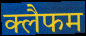
क्लैफम